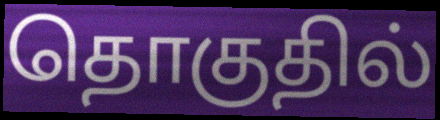
தொகுதில்